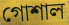
গোশাল